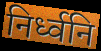
निर्ध्वनि